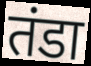
तंडा